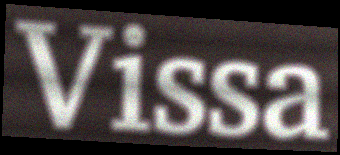
Vissa